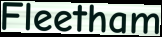
Fleetham